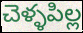
చెళ్ళపిల్ల